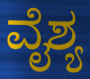
ವೈಶ್ಯ